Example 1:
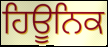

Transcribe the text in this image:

ਹਿਊਨਿਕ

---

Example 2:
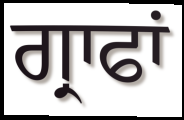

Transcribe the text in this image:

ਗ੍ਰਾਫਾਂ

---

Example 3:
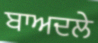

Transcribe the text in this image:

ਬਾਅਦਲੇ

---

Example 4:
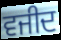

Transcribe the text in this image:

ਵਜੀਦ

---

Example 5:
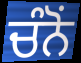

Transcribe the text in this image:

ਚੰਨੋਂ